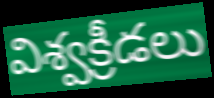
విశ్వక్రీడలు